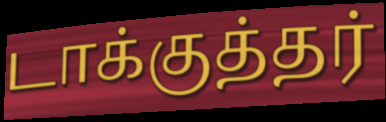
டாக்குத்தர்